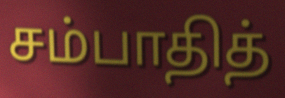
சம்பாதித்